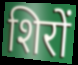
शिरों